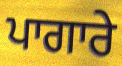
ਪਾਗਾਰੇ